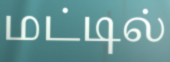
மட்டில்